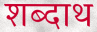
शब्दाथ